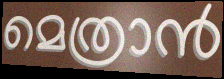
മെത്രാൻ